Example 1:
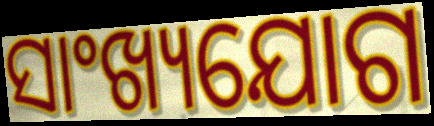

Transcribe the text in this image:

ସାଂଖ୍ୟଯୋଗ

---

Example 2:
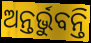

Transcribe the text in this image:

ଅନ୍ତର୍ଭୁବନ୍ତି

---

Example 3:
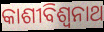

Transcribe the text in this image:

କାଶୀବିଶ୍ଵନାଥ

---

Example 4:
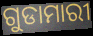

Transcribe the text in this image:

ଗୁଡାମାରୀ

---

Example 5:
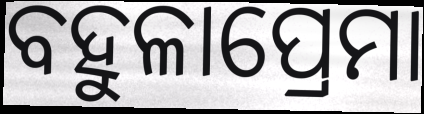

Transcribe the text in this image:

ବହୁଳାପ୍ରେମା